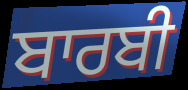
ਬਾਰਬੀ